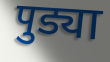
पुड्या